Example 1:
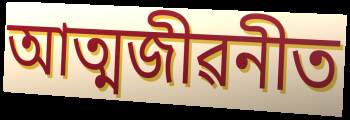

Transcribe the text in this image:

আত্মজীৱনীত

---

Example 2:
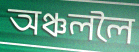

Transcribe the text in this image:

অঞ্চললৈ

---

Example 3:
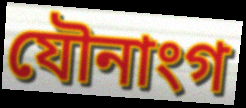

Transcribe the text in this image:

যৌনাংগ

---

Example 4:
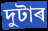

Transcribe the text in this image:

দুটাৰ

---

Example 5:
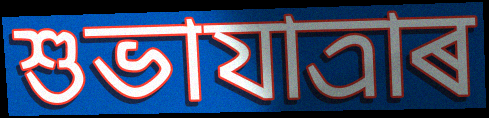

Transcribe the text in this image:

শুভাযাত্ৰাৰ